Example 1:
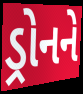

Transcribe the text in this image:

ડ્રોનને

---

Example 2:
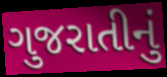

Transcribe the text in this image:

ગુજરાતીનું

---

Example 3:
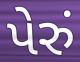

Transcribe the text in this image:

પેરું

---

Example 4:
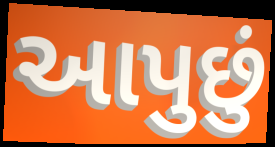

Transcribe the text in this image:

આપુછું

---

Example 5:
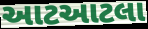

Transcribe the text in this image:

આટઆટલા